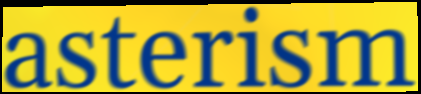
asterism